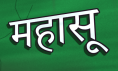
महासू